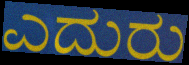
ಎದುರು